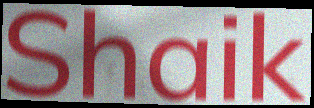
Shaik